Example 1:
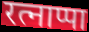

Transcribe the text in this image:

रत्नाप्पा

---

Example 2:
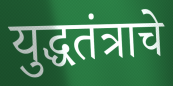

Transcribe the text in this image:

युद्धतंत्राचे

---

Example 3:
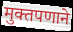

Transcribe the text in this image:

मुक्तपणाने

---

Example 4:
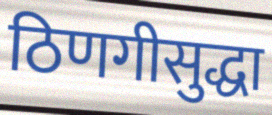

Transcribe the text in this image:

ठिणगीसुद्धा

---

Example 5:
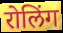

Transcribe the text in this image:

रोलिंग